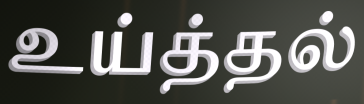
உய்த்தல்